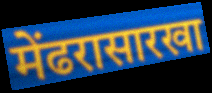
मेंढरासारखा